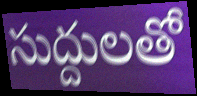
సుద్దులతో